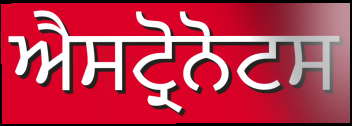
ਐਸਟ੍ਰੋਨੋਟਸ